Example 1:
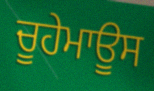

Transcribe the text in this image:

ਚੂਹੇਮਾਊਸ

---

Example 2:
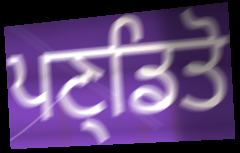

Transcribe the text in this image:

ਪਣ੍ਡਿਤੋ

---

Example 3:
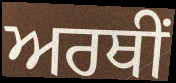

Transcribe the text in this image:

ਅਰਥੀਂ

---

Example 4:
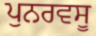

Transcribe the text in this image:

ਪੁਨਰਵਸੂ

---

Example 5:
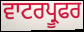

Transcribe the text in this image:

ਵਾਟਰਪ੍ਰੂਫਰ